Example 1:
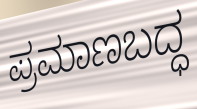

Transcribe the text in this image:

ಪ್ರಮಾಣಬದ್ಧ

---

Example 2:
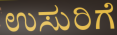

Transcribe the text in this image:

ಉಸುರಿಗೆ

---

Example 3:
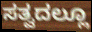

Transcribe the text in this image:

ಸತ್ವದಲ್ಲೂ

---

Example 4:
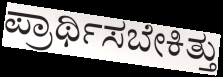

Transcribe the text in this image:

ಪ್ರಾರ್ಥಿಸಬೇಕಿತ್ತು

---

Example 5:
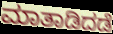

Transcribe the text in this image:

ಮಾತಾಡಿದಡೆ